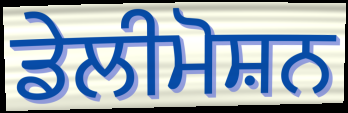
ਡੇਲੀਮੋਸ਼ਨ